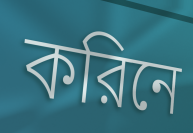
করিনে